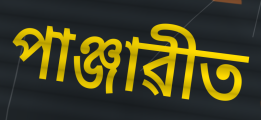
পাঞ্জাৱীত